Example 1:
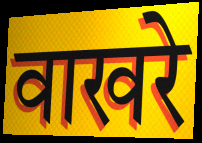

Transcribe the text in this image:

वाखरे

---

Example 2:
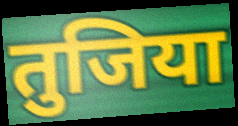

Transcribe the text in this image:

तुजिया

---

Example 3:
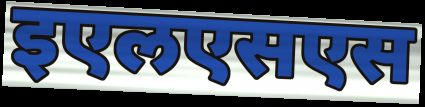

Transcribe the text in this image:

इएलएसएस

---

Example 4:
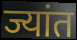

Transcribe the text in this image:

ज्यांत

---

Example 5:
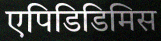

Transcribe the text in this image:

एपिडिडिमिस